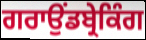
ਗਰਾਉਂਡਬ੍ਰੇਕਿੰਗ